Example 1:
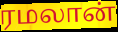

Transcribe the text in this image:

ரமலான்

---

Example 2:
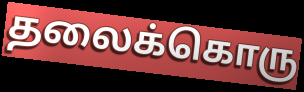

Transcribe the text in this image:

தலைக்கொரு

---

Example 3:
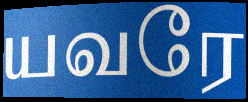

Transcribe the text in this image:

யவரே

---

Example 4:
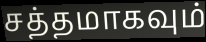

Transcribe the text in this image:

சத்தமாகவும்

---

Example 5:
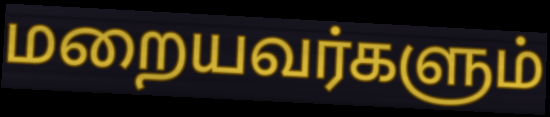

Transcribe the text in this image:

மறையவர்களும்